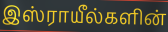
இஸ்ராயீல்களின்